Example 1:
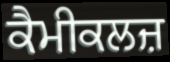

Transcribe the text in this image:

ਕੈਮੀਕਲਜ਼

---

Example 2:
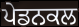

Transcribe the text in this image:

ਪੇਡਨਕਲ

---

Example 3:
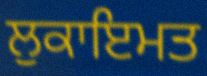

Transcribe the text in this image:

ਲੁਕਾਇਮਤ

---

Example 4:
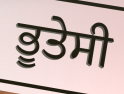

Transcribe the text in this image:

ਭੂਤੇਸੀ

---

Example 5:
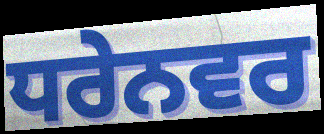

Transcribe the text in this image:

ਧਰੇਨਵਰ